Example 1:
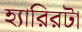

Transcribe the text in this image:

হ্যারিরটা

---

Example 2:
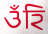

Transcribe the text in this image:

ওঁহি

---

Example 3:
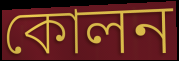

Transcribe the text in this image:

কোলন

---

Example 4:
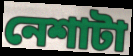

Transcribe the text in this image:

নেশাটা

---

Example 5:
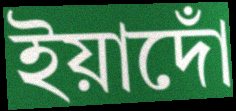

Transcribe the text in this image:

ইয়াদোঁ